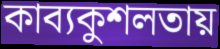
কাব্যকুশলতায়